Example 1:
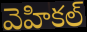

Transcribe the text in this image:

వెహికల్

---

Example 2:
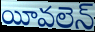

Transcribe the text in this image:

యీవలెన్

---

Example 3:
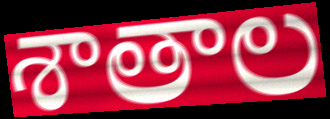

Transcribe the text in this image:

శాతాల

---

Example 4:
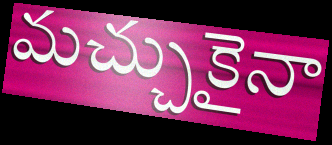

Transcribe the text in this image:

మచ్చుకైనా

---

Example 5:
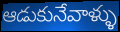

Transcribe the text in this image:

ఆడుకునేవాళ్ళు